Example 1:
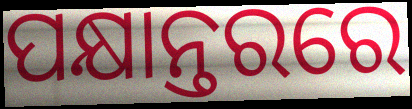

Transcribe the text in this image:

ପକ୍ଷାନ୍ତରରେ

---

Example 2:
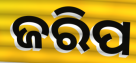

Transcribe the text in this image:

ଜରିପ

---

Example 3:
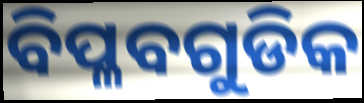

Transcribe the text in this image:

ବିପ୍ଳବଗୁଡିକ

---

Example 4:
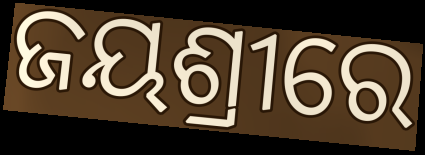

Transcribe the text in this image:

ଜୟଶ୍ରୀରେ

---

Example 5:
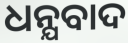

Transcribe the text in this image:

ଧନ୍ଯବାଦ